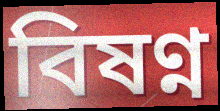
বিষণ্ন